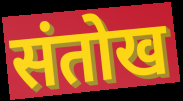
संतोख